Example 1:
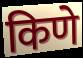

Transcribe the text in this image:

किणे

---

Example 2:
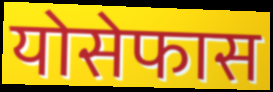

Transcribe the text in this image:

योसेफास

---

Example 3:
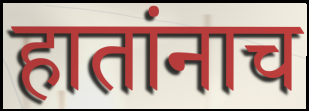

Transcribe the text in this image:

हातांनाच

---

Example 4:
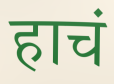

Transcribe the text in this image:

हाचं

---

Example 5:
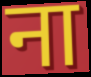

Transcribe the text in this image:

ना